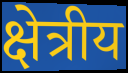
क्षेत्रीय